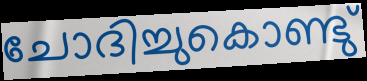
ചോദിച്ചുകൊണ്ടു്